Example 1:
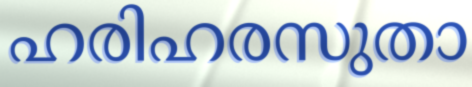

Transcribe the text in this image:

ഹരിഹരസുതാ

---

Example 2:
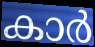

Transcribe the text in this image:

കാർ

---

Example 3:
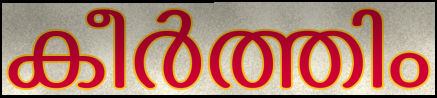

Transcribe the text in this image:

കീർത്തിം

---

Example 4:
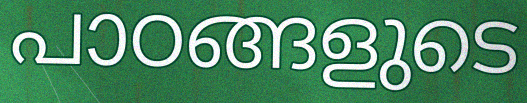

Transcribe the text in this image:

പാഠങ്ങളുടെ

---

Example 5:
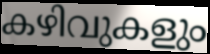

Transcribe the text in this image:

കഴിവുകളും